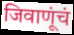
जिवाणूंचं